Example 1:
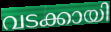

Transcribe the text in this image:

വടക്കായി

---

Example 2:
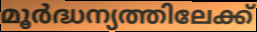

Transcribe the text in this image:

മൂർദ്ധന്യത്തിലേക്ക്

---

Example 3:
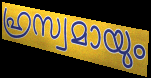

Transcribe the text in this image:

ഹ്രസ്വമായും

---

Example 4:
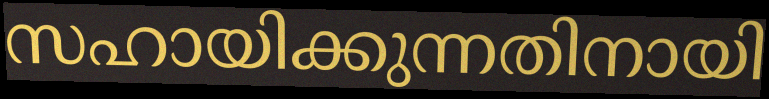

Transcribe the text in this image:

സഹായിക്കുന്നതിനായി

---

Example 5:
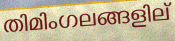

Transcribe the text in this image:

തിമിംഗലങ്ങളില്